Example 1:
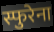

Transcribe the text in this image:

स्फुरेना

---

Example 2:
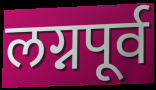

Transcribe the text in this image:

लग्नपूर्व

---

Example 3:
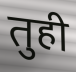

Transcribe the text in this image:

तुही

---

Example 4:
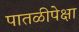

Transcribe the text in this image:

पातळीपेक्षा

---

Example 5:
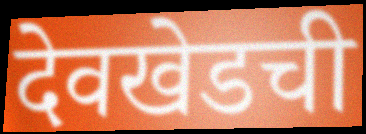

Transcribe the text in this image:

देवखेडची